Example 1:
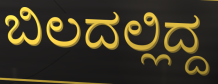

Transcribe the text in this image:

ಬಿಲದಲ್ಲಿದ್ದ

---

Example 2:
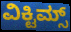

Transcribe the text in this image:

ವಿಕ್ಟಿಮ್ಸ್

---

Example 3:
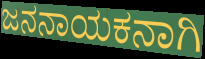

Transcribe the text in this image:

ಜನನಾಯಕನಾಗಿ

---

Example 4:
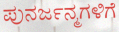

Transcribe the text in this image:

ಪುನರ್ಜನ್ಮಗಳಿಗೆ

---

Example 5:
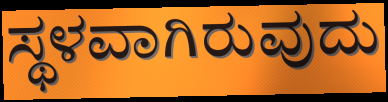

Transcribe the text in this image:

ಸ್ಥಳವಾಗಿರುವುದು